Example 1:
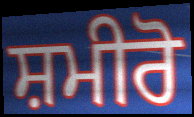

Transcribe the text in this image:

ਸ਼ਮੀਰੋ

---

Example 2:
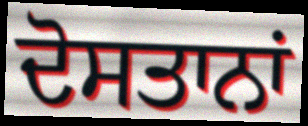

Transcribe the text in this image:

ਦੋਸਤਾਨਾਂ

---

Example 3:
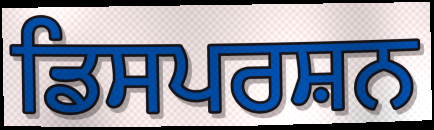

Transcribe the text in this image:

ਡਿਸਪਰਸ਼ਨ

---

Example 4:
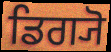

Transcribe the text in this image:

ਡਿਗ੍ਯੋ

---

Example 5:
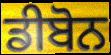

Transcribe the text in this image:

ਡੀਬੋਨ